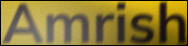
Amrish